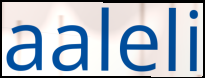
aaleli